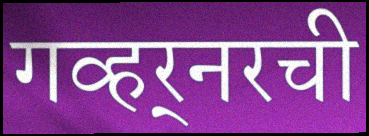
गव्हर्नरची